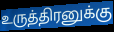
உருத்திரனுக்கு